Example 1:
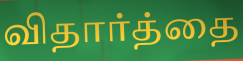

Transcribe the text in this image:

விதார்த்தை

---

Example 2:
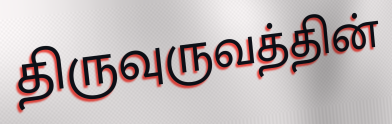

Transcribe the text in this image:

திருவுருவத்தின்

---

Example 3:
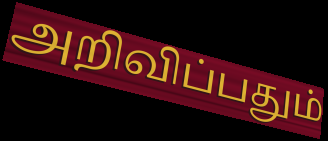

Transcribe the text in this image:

அறிவிப்பதும்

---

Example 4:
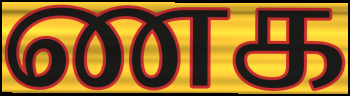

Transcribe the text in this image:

ணக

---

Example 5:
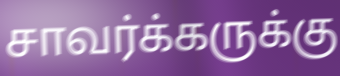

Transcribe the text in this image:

சாவர்க்கருக்கு